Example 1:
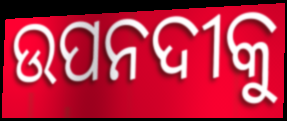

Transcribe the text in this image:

ଉପନଦୀକୁ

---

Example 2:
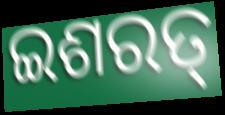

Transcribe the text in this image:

ଇଶରତ୍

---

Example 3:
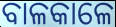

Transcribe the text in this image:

ବାଳକାଳେ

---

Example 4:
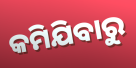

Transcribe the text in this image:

କମିଯିବାରୁ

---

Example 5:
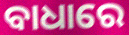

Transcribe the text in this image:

ବାଧାରେ